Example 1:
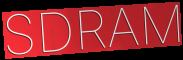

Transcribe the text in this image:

SDRAM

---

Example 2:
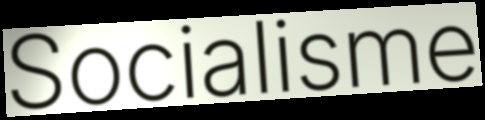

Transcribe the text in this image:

Socialisme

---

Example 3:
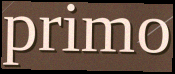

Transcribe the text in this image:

primo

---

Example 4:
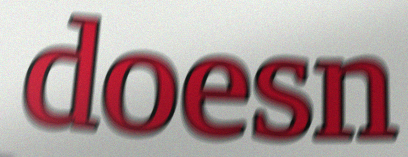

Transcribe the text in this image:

doesn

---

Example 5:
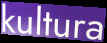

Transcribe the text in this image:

kultura